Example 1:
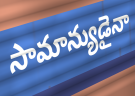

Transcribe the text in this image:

సామాన్యుడైనా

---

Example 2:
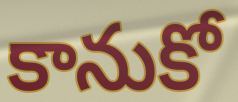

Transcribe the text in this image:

కానుకో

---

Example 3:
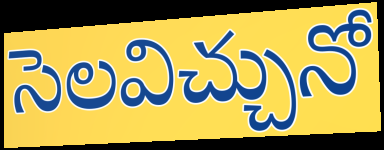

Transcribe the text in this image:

సెలవిచ్చునో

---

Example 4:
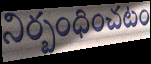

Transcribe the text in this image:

నిర్బంధించటం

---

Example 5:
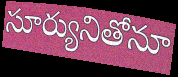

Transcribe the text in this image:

సూర్యునితోనూ